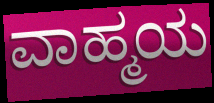
ವಾಹ್ಮಯ